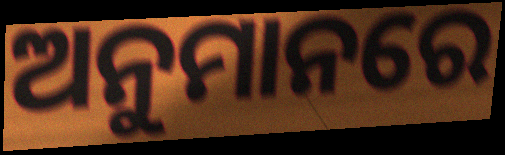
ଅନୁମାନରେ